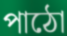
পাঠো